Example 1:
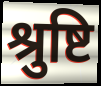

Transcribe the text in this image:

श्रुष्टि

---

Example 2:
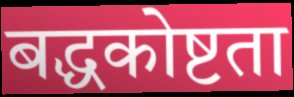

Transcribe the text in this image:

बद्धकोष्टता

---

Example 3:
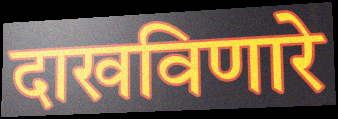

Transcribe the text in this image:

दाखविणारे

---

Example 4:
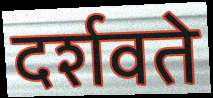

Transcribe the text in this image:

दर्शवते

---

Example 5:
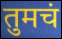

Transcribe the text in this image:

तुमचं